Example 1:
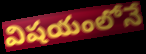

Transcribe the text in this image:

విషయంలోనే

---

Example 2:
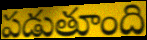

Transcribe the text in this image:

పడుతూంది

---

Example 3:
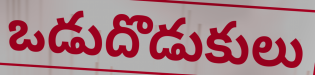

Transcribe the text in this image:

ఒడుదొడుకులు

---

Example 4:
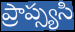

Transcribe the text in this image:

ప్రాప్స్యసి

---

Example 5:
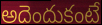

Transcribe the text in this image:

అదెందుకంటే